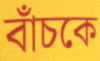
বাঁচকে